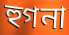
হুগনা